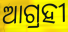
ଆଗ୍ରହୀ